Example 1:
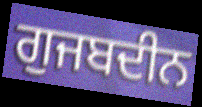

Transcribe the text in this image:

ਗੁਜਬਦੀਨ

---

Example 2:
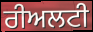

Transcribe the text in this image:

ਰੀਅਲਟੀ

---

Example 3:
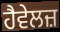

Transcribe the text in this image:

ਹੈਵੇਲਜ਼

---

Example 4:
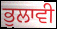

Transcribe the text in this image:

ਭੁਲਾਵੀ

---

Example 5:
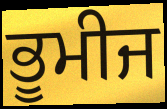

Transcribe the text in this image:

ਭੂਮੀਜ